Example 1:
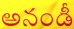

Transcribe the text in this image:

అనండీ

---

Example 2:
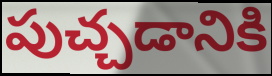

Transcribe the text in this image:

పుచ్చడానికి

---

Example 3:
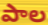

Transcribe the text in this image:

పాల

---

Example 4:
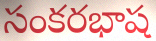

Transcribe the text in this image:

సంకరభాష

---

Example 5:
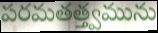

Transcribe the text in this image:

పరమతత్త్వమును